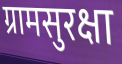
ग्रामसुरक्षा